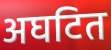
अघटित